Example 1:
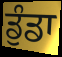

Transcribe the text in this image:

ਡੁੰਡਾ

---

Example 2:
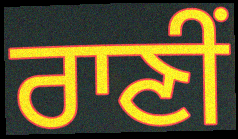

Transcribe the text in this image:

ਰਾਣੀਂ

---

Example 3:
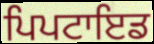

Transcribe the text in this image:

ਪਿਪਟਾਇਡ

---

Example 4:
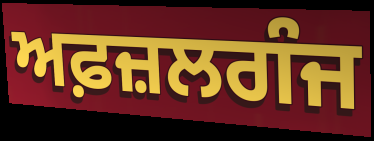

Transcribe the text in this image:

ਅਫ਼ਜ਼ਲਗੰਜ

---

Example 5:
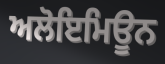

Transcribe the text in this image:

ਅਲੋਇਮਿਊਨ